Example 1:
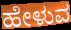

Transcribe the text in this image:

ಹೇಳುವ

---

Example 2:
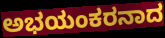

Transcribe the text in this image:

ಅಭಯಂಕರನಾದ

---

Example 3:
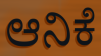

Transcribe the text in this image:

ಆನಿಕೆ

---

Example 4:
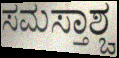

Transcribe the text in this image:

ಸಮಸ್ತಾಶ್ಚ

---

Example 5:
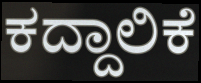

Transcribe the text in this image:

ಕದ್ದಾಲಿಕೆ